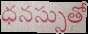
ధనస్సుతో